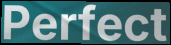
Perfect